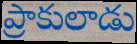
ప్రాకులాడు